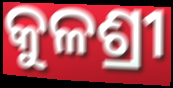
କୁଳଶ୍ରୀ